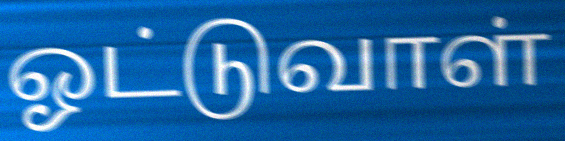
ஓட்டுவாள்